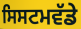
ਸਿਸਟਮਵੱਡੇ